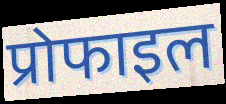
प्रोफाइल